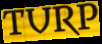
TURP